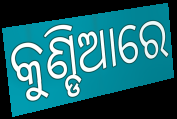
କୁଣ୍ଡିଆରେ